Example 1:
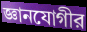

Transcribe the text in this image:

জ্ঞানযোগীর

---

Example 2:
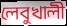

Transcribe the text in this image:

লেবুখালী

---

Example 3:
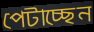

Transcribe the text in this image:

পেটাচ্ছেন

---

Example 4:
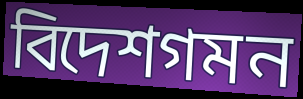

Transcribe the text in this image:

বিদেশগমন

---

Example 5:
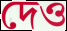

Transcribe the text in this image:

দেও